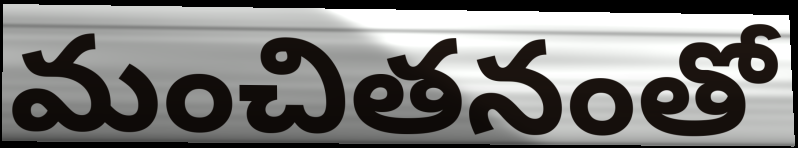
మంచితనంతో